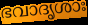
ഭവാദൃശാഃ